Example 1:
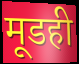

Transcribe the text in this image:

मूडही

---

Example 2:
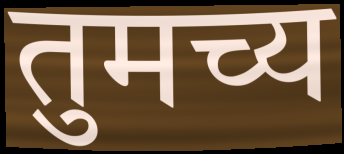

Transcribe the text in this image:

तुमच्य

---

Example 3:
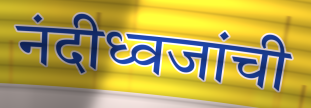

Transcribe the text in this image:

नंदीध्वजांची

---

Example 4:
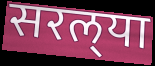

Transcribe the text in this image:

सरल्या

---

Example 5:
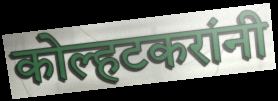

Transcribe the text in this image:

कोल्हटकरांनी